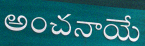
అంచనాయే